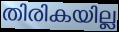
തിരികയില്ല